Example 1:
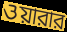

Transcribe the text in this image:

ওয়ারার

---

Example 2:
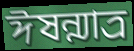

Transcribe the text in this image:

ঈষন্মাত্র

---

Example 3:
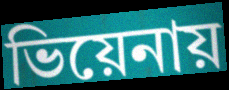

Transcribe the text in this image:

ভিয়েনায়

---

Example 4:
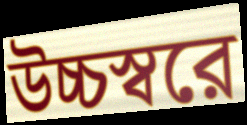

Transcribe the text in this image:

উচ্চস্বরে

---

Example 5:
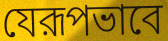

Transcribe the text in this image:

যেরূপভাবে